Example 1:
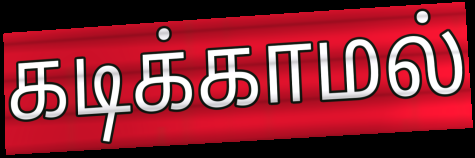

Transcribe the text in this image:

கடிக்காமல்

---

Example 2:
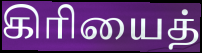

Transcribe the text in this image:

கிரியைத்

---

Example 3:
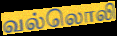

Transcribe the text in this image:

வல்லொலி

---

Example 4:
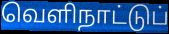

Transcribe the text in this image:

வெளிநாட்டுப்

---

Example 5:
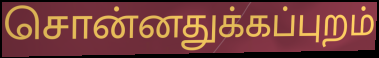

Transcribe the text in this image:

சொன்னதுக்கப்புறம்